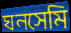
ঘনসেমি